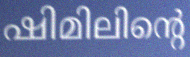
ഷിമിലിന്റെ